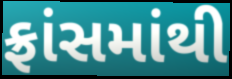
ફ્રાંસમાંથી